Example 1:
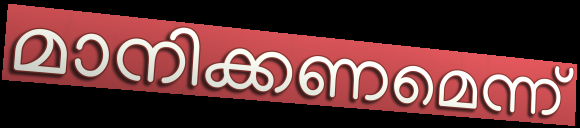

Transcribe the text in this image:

മാനിക്കണമെന്ന്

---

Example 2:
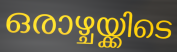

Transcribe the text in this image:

ഒരാഴ്ചയ്ക്കിടെ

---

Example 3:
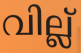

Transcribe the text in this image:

വില്ല്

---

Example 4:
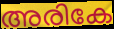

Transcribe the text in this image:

അരികേ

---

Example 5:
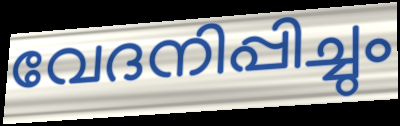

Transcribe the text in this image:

വേദനിപ്പിച്ചും